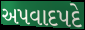
અપવાદપદે